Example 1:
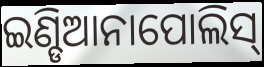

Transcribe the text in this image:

ଇଣ୍ଡିଆନାପୋଲିସ୍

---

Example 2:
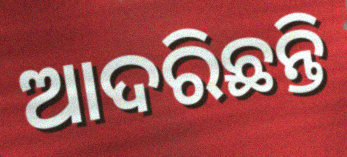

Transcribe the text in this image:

ଆଦରିଛନ୍ତି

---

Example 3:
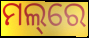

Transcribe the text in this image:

ମଲ୍‌ରେ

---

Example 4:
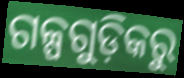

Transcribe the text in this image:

ଗଳ୍ପଗୁଡ଼ିକରୁ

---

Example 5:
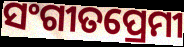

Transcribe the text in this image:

ସଂଗୀତପ୍ରେମୀ